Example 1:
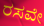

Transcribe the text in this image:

ರಸವೇ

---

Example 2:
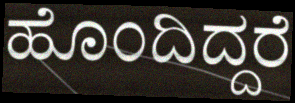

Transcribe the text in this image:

ಹೊಂದಿದ್ದರೆ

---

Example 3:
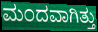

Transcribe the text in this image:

ಮಂದವಾಗಿತ್ತು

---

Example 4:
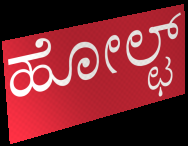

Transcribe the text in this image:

ಹೋಲ್ಟ್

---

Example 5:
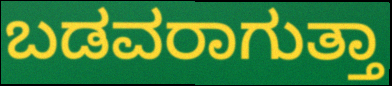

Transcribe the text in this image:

ಬಡವರಾಗುತ್ತಾ